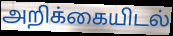
அறிக்கையிடல்